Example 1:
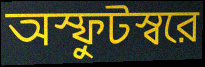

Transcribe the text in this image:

অস্ফুটস্বরে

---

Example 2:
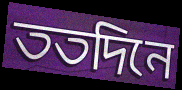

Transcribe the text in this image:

ততদিনে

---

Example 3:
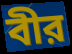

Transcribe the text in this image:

বীর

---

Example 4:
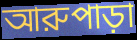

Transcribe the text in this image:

আরুপাড়া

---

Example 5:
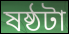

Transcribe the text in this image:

ষষ্ঠটা